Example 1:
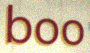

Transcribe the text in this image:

boo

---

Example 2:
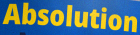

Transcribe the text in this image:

Absolution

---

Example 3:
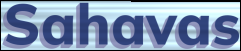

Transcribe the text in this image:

Sahavas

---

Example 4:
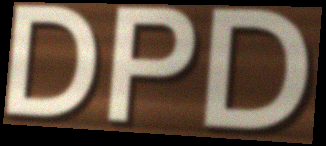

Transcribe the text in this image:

DPD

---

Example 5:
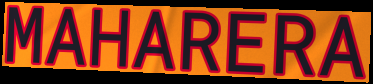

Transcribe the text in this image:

MAHARERA